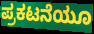
ಪ್ರಕಟನೆಯೂ